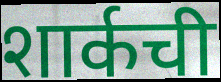
शार्कची